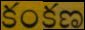
కంకణ